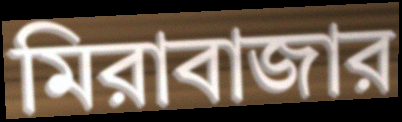
মিরাবাজার